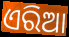
ଏରିଆ